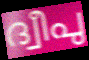
ദ്വീപു